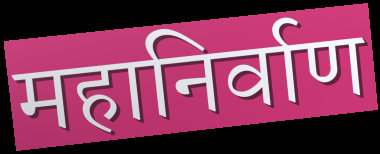
महानिर्वाण